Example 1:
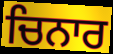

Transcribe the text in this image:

ਚਿਨਾਰ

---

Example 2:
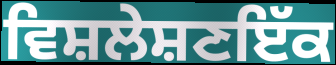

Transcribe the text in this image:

ਵਿਸ਼ਲੇਸ਼ਣਇੱਕ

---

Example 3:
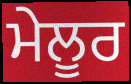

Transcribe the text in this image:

ਮੇਲੂਰ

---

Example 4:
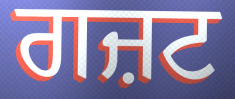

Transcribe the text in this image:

ਗਜ਼ਟ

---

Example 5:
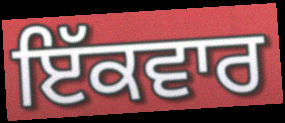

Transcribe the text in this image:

ਇੱਕਵਾਰ